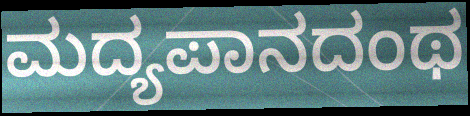
ಮದ್ಯಪಾನದಂಥ